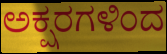
ಅಕ್ಷರಗಳಿಂದ